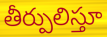
తీర్పులిస్తూ